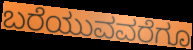
ಬರೆಯುವವರೆಗೂ